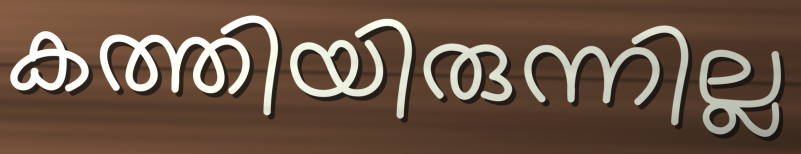
കത്തിയിരുന്നില്ല